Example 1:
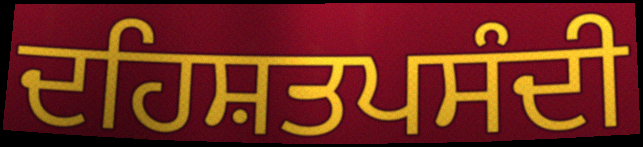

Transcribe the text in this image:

ਦਹਿਸ਼ਤਪਸੰਦੀ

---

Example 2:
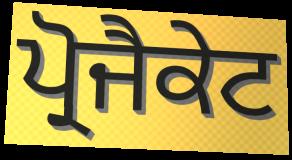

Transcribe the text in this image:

ਪ੍ਰੋਜੈਕੇਟ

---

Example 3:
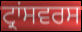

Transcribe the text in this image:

ਟ੍ਰਾਂਸਵਰਸ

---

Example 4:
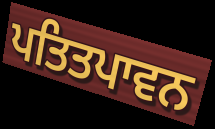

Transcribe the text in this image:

ਪਤਿਤਪਾਵਨ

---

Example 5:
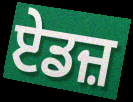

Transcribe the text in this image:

ਏਡਜ਼